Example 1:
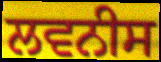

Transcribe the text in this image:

ਲਵਨੀਸ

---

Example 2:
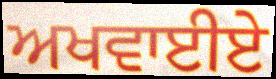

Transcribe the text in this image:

ਅਖਵਾਈਏ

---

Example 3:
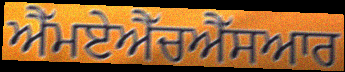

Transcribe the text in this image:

ਐੱਮਏਐੱਚਐੱਸਆਰ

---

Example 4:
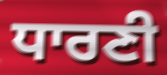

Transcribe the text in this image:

ਧਾਰਣੀ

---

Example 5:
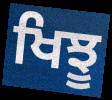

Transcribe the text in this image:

ਖਿਝੂ